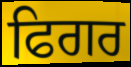
ਫਿਗਰ